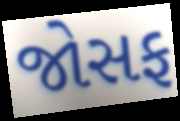
જોસફ